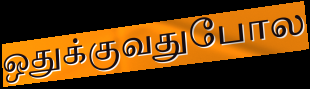
ஒதுக்குவதுபோல